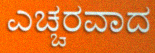
ಎಚ್ಚರವಾದ